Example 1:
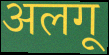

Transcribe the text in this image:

अलगू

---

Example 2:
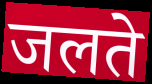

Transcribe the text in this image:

जलते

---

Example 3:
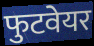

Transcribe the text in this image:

फुटवेयर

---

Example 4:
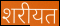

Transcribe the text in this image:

शरीयत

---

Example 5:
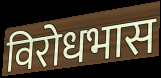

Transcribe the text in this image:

विरोधभास